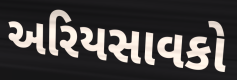
અરિયસાવકો